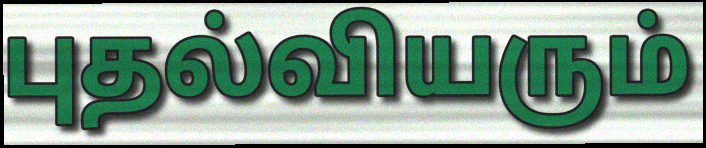
புதல்வியரும்